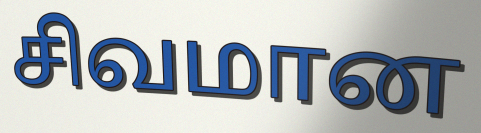
சிவமான